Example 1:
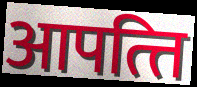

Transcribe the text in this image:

आपत्त्ति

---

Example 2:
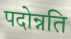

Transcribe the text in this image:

पदोन्नति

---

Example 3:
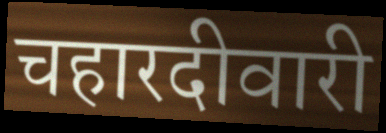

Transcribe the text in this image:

चहारदीवारी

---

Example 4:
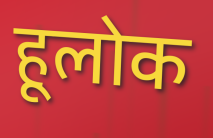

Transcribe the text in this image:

हूलोक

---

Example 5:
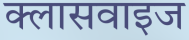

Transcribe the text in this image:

क्लासवाइज